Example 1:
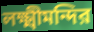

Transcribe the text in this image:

লক্ষ্মীমন্দির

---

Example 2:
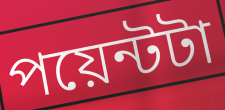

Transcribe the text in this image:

পয়েন্টটা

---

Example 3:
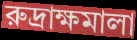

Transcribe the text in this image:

রুদ্রাক্ষমালা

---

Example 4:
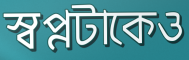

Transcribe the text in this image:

স্বপ্নটাকেও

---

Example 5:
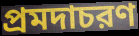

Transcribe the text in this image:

প্রমদাচরণ